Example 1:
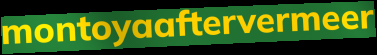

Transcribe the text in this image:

montoyaaftervermeer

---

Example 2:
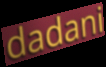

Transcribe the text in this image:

dadani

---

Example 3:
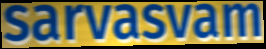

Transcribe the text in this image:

sarvasvam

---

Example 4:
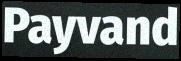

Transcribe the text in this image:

Payvand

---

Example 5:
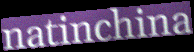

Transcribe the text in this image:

natinchina